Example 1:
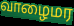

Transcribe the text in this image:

வாழைமர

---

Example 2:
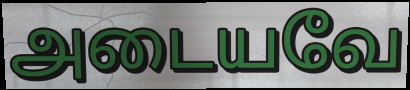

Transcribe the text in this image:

அடையவே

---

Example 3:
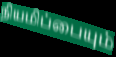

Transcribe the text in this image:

நியமிப்பையும்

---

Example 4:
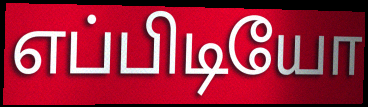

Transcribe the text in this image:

எப்பிடியோ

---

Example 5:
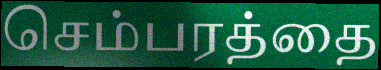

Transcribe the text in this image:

செம்பரத்தை